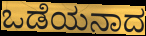
ಒಡೆಯನಾದ